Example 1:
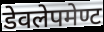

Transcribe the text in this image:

डेवलेपमेण्ट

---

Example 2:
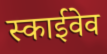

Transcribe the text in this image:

स्काईवेव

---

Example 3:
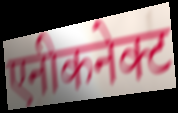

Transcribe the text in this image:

एनीकनेक्ट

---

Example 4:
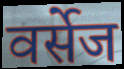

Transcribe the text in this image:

वर्सेज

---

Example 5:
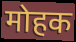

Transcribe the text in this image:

मोहक